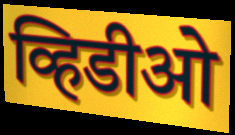
व्हिडीओ